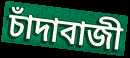
চাঁদাবাজী